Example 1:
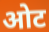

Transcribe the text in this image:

ओट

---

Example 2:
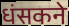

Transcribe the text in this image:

धंसकने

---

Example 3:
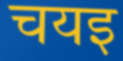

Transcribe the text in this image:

चयइ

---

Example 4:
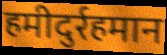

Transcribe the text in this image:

हमीदुर्रहमान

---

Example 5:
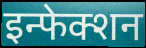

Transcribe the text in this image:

इन्फेक्शन